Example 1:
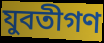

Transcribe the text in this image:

যুবতীগণ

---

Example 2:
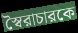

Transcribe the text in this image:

স্বৈরাচারকে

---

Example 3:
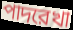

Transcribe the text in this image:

পাদরেখা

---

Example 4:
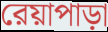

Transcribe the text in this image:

রেয়াপাড়া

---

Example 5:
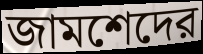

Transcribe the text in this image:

জামশেদের